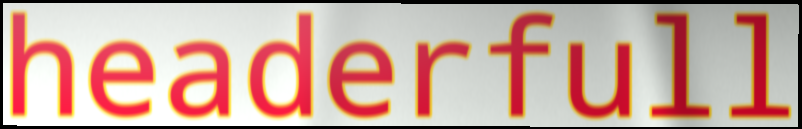
headerfull